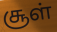
சூள்